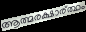
ആത്മരക്ഷാര്ത്ഥം